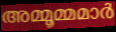
അമ്മൂമ്മമാർ